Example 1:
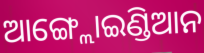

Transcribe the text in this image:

ଆଙ୍ଗ୍ଲୋଇଣ୍ଡିଆନ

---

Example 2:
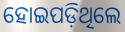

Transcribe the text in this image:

ହୋଇପଡ଼ିଥିଲେ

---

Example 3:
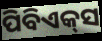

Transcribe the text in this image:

ପିବିଏକ୍‌ସ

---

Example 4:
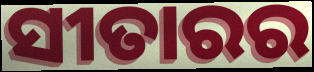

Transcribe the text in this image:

ସୀତାରର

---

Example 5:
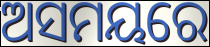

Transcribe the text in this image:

ଅସମୟରେ